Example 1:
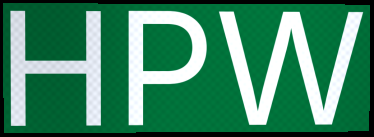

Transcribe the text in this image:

HPW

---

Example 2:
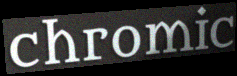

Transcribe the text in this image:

chromic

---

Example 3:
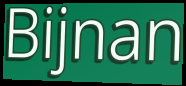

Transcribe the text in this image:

Bijnan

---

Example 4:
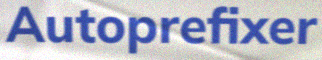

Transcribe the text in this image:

Autoprefixer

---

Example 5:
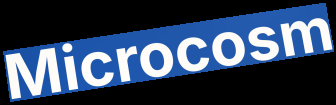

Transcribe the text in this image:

Microcosm